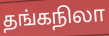
தங்கநிலா